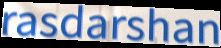
rasdarshan